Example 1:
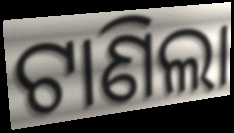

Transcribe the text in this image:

ଟାଣିଲା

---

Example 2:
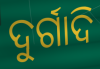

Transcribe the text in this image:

ଦୁର୍ଗାଦି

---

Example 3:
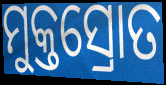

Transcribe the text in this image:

ମୁକ୍ତସ୍ରୋତ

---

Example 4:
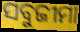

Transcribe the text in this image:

ସବୁଜୀମା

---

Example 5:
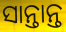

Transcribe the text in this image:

ସାନ୍ତାନ୍ତ